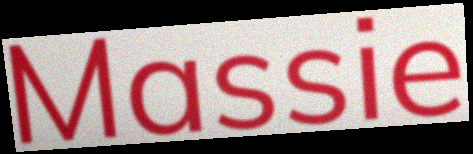
Massie